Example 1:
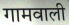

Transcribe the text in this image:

गामवाली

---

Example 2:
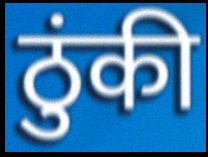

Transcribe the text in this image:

ठुंकी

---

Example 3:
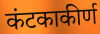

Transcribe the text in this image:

कंटकाकीर्ण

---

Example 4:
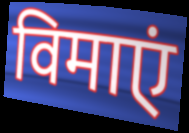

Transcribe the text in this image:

विमाएं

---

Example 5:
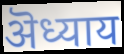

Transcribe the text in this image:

ऄध्याय